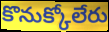
కొనుక్కోలేరు